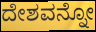
ದೇಶವನ್ನೋ